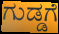
ಗುಡ್ಡಗೆ